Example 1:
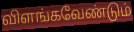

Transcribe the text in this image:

விளங்கவேண்டும்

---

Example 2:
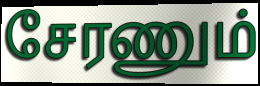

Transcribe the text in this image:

சேரணும்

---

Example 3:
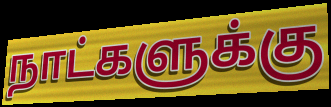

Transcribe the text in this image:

நாட்களுக்கு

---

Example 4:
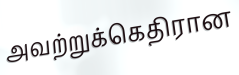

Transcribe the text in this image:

அவற்றுக்கெதிரான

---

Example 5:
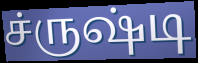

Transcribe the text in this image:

ச்ருஷ்டி